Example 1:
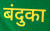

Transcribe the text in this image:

बंदुका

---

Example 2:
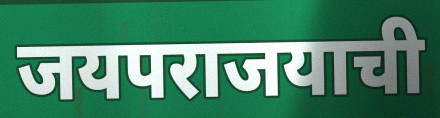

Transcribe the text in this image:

जयपराजयाची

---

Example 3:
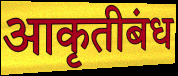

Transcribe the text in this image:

आकृतीबंध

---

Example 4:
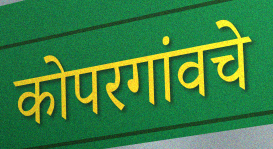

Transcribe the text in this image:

कोपरगांवचे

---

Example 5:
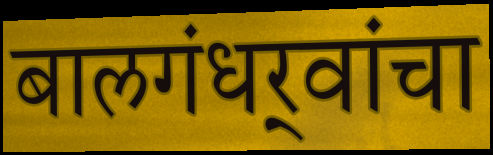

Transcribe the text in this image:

बालगंधर्वांचा